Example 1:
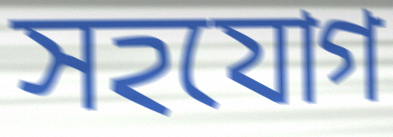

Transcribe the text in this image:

সহযোগ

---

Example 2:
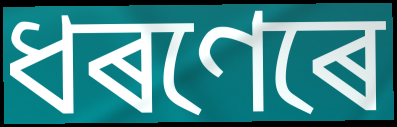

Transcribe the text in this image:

ধৰণেৰে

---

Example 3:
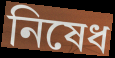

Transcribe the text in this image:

নিষেধ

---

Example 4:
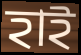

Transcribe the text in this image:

হাই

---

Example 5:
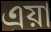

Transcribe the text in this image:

এয়া